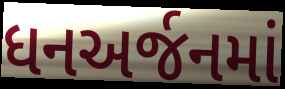
ધનઅર્જનમાં